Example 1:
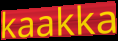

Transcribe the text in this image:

kaakka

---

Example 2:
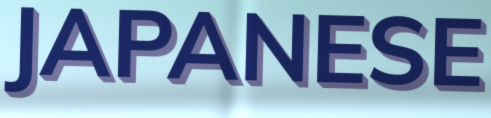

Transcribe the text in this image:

JAPANESE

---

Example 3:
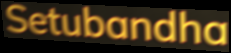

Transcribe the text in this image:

Setubandha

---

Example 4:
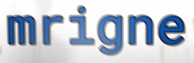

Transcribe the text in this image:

mrigne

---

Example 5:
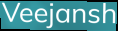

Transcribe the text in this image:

Veejansh